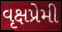
વૃક્ષપ્રેમી